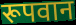
रूपवान